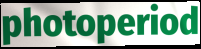
photoperiod